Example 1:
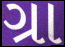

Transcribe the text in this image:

ગ્રા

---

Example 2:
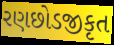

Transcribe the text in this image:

રણછોડજીકૃત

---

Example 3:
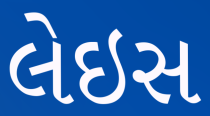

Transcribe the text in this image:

લેઇસ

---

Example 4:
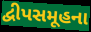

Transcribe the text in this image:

દ્વીપસમૂહના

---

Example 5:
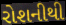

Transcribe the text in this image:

રોશનીથી